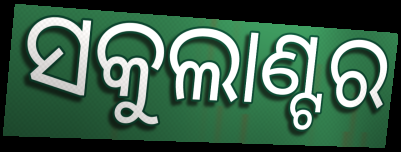
ସକୁଲାଣ୍ଟର